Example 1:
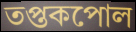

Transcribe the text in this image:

তপ্তকপোল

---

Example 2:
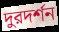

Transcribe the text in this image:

দুরদর্শন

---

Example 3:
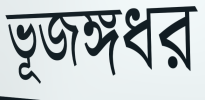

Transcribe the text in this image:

ভূজঙ্গধর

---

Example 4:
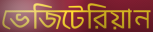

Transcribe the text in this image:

ভেজিটেরিয়ান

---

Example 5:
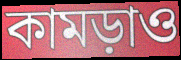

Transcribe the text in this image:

কামড়াও